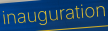
inauguration